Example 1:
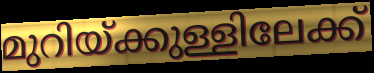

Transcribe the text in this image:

മുറിയ്ക്കുള്ളിലേക്ക്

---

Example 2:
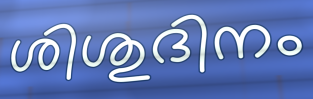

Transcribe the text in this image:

ശിശുദിനം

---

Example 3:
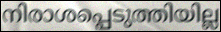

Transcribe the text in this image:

നിരാശപ്പെടുത്തിയില്ല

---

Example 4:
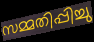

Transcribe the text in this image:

സമ്മതിപ്പിച്ചു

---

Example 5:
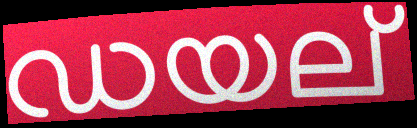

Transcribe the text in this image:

ഡയല്